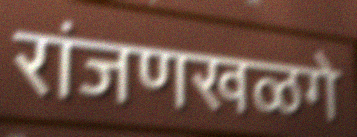
रांजणखळगे